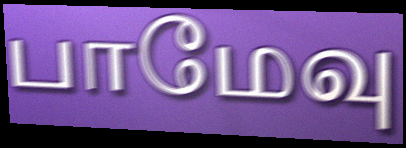
பாமேவு